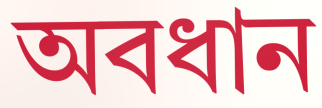
অবধান